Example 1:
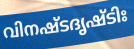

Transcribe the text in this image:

വിനഷ്ടദൃഷ്ടിഃ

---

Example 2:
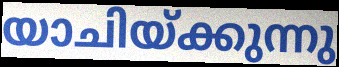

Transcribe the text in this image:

യാചിയ്ക്കുന്നു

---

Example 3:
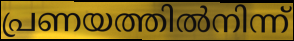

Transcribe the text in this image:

പ്രണയത്തിൽനിന്ന്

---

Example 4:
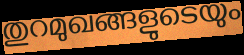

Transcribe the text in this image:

തുറമുഖങ്ങളുടെയും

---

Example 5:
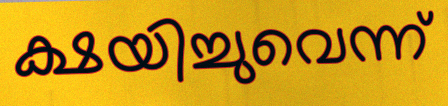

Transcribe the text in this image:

ക്ഷയിച്ചുവെന്ന്